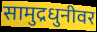
सामुद्रधुनीवर